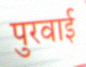
पुरवाई